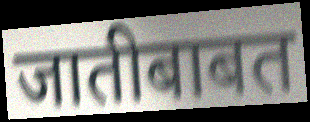
जातीबाबत